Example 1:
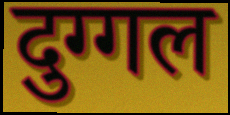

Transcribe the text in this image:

दुग्गल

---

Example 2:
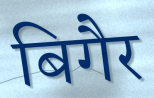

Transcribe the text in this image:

बिगैर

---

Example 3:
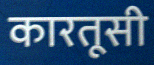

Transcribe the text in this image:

कारतूसी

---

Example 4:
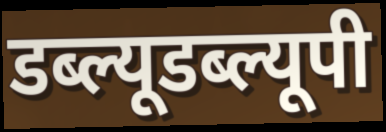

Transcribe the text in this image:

डब्ल्यूडब्ल्यूपी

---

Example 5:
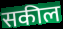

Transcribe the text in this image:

सकील